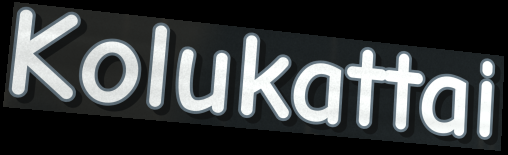
Kolukattai